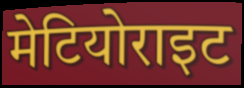
मेटियोराइट